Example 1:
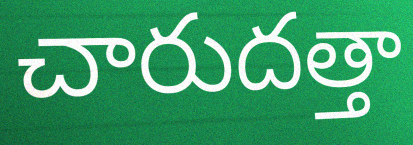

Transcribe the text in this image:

చారుదత్తా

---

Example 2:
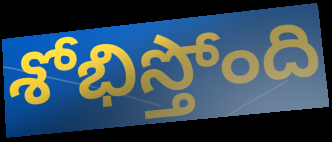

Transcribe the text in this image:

శోభిస్తోంది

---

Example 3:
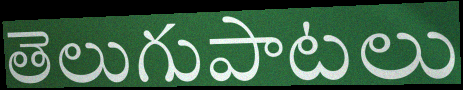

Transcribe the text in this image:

తెలుగుపాటలు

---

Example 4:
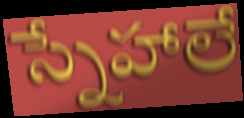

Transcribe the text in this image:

స్నేహాలే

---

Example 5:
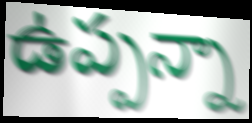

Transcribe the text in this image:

ఉప్పన్నా